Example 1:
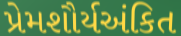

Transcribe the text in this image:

પ્રેમશૌર્યઅંકિત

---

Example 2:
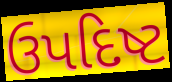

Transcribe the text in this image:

ઉપદિષ્ટ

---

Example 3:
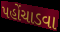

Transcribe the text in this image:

પહોંચાડવા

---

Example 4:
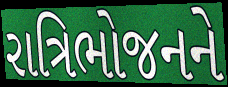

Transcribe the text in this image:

રાત્રિભોજનને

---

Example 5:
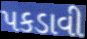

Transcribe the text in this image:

પકડાવી